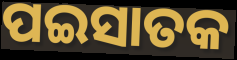
ପଇସାତକ